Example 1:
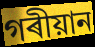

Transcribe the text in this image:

গৰীয়ান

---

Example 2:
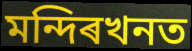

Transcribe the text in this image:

মন্দিৰখনত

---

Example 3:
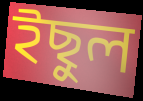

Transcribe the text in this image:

ইছুল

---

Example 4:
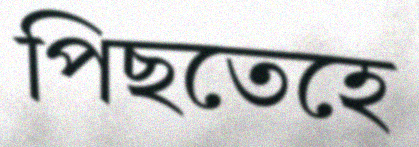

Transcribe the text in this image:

পিছতেহে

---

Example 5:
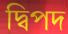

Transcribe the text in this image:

দ্বিপদ